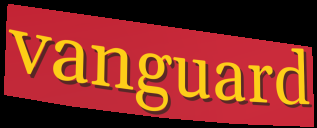
vanguard